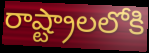
రాష్ట్రాలలోకి